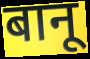
बानू